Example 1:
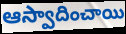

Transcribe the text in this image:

ఆస్వాదించాయి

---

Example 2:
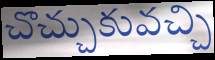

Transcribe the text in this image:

చొచ్చుకువచ్చి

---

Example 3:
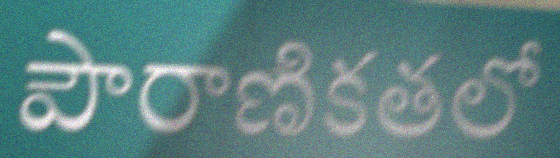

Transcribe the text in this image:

పౌరాణికతలో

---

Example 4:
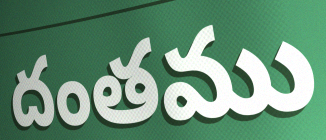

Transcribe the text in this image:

దంతము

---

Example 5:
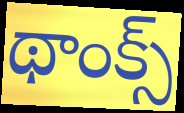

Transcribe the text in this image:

థాంక్స్